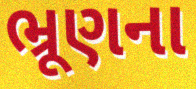
ભ્રૂણના